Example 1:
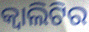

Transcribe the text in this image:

କ୍ୱାଲିଟିର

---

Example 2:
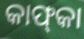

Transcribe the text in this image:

କାଫ୍‍କା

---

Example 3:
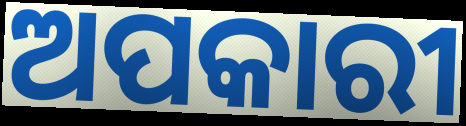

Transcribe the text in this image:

ଅପକାରୀ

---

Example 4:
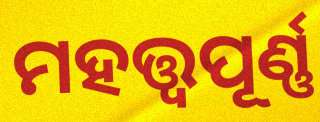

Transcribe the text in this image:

ମହତ୍ତ୍ୱପୂର୍ଣ୍ଣ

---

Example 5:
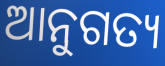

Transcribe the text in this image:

ଆନୁଗତ୍ୟ